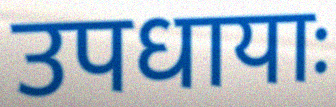
उपधायाः